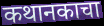
कथानकाचा